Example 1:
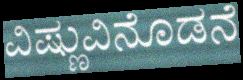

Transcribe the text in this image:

ವಿಷ್ಣುವಿನೊಡನೆ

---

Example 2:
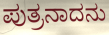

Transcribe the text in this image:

ಪುತ್ರನಾದನು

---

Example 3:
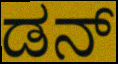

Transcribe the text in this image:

ಡನ್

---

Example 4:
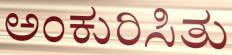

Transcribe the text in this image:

ಅಂಕುರಿಸಿತು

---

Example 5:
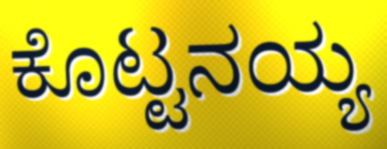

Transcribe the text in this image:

ಕೊಟ್ಟನಯ್ಯ